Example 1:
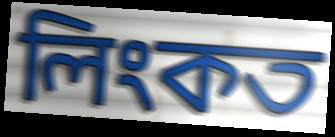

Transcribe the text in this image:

লিংকত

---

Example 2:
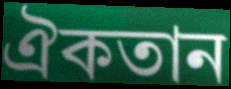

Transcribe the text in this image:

ঐকতান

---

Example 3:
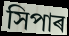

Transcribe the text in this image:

সিপাৰ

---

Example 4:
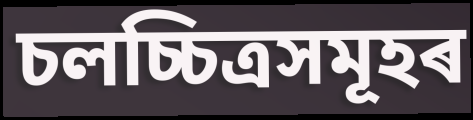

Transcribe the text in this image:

চলচ্চিত্ৰসমূহৰ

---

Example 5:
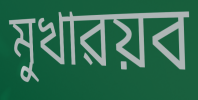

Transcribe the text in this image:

মুখাৱয়ব